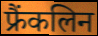
फ्रैंकलिन